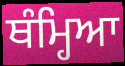
ਥੰਮ੍ਹਿਆ